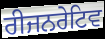
ਰੀਜਨਰੇਟਿਵ